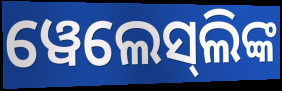
ୱେଲେସ୍‌ଲିଙ୍କ